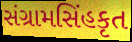
સંગ્રામસિંહકૃત